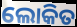
ଲୋକିତ